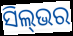
ସିଲ୍‌ଭର